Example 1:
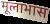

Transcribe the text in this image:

मूलाभास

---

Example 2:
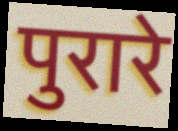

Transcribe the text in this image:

पुरारे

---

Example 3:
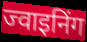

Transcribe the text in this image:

ज्वाइनिंग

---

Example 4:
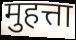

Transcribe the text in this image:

मुहत्ता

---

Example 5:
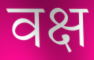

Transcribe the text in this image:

वक्ष